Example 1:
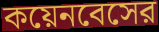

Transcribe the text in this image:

কয়েনবেসের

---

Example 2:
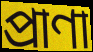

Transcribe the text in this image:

প্রাণা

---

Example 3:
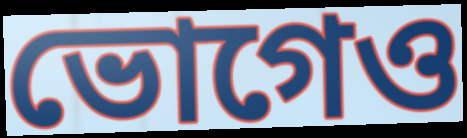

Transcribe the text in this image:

ভোগেও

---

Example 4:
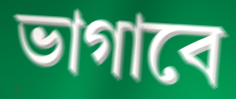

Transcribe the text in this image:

ভাগাবে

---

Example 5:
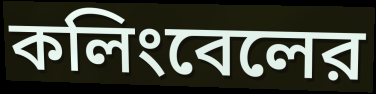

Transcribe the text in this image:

কলিংবেলের